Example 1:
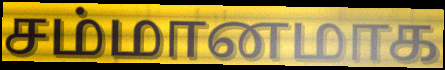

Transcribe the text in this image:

சம்மானமாக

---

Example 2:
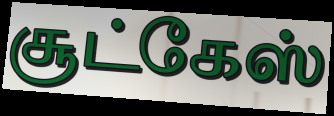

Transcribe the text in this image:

சூட்கேஸ்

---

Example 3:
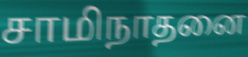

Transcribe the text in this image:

சாமிநாதனை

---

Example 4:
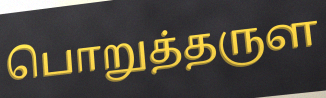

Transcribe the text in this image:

பொறுத்தருள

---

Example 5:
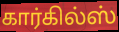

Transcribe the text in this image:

கார்கில்ஸ்